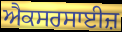
ਐਕਸਰਸਾਈਜ਼